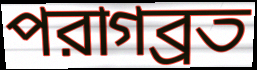
পরাগব্রত